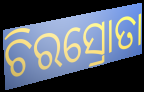
ଚିରସ୍ରୋତା